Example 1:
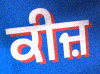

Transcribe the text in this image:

ਕੀਜ਼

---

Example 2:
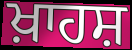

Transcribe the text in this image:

ਖ਼ਾਹਸ਼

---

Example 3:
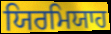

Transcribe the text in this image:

ਯਿਰਮਿਯਾਹ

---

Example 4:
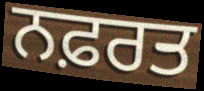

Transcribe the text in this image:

ਨਫ਼ਰਤ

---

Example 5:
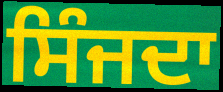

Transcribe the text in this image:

ਸਿੰਜਦਾ